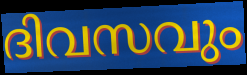
ദിവസവും